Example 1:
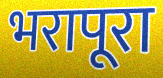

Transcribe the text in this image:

भरापूरा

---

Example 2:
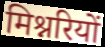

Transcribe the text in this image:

मिश्नरियों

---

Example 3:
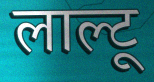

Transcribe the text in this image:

लाल्टू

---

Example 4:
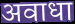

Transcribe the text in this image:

अवाधा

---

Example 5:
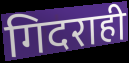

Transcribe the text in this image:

गिदराही